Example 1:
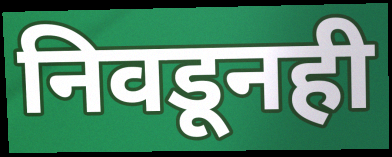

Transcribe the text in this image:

निवडूनही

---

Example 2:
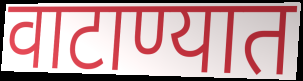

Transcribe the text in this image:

वाटाण्यात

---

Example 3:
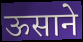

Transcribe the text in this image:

ऊसाने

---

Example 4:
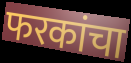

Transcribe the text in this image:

फरकांचा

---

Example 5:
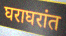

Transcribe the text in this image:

घराघरांत